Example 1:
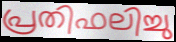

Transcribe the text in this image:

പ്രതിഫലിച്ചു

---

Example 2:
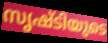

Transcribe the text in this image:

സൃഷ്ടിയുടെ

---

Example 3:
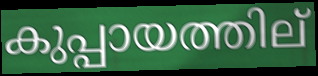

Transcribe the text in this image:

കുപ്പായത്തില്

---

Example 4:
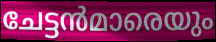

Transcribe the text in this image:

ചേട്ടൻമാരെയും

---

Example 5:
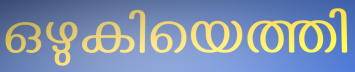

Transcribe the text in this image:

ഒഴുകിയെത്തി